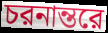
চরনান্তরে